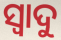
ସ୍ଵାଦୁ